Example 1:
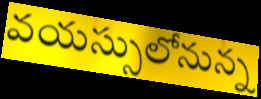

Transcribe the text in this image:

వయస్సులోనున్న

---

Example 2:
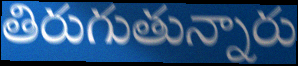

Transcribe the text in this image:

తిరుగుతున్నారు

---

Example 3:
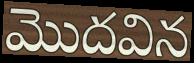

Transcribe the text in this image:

మొదవిన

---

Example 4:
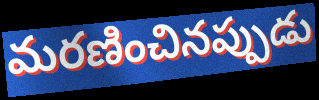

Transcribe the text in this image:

మరణించినప్పుడు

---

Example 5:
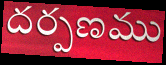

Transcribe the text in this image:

దర్పణము